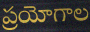
ప్రయోగాల